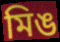
মিঙ